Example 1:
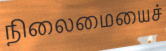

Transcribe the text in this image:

நிலைமையைச்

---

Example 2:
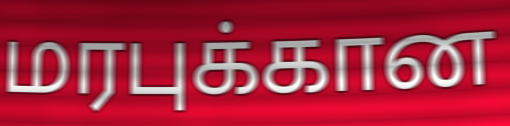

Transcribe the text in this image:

மரபுக்கான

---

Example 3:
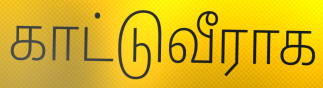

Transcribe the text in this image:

காட்டுவீராக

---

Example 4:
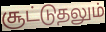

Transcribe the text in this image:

சூட்டுதலும்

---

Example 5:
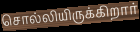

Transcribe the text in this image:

சொல்லியிருக்கிறார்